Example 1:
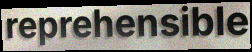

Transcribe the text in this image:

reprehensible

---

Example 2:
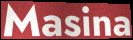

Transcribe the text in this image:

Masina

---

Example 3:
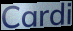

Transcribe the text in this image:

Cardi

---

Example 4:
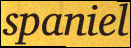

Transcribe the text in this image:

spaniel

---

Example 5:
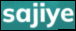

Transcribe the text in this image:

sajiye